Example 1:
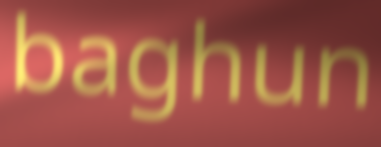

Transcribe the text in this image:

baghun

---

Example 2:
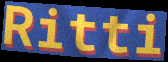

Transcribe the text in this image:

Ritti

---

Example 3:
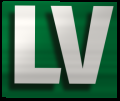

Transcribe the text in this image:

LV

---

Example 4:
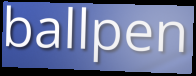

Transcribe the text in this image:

ballpen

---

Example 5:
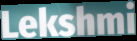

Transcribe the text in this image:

Lekshmi